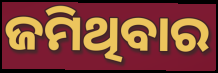
ଜମିଥିବାର